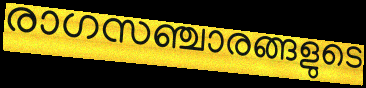
രാഗസഞ്ചാരങ്ങളുടെ